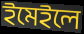
ইমেইলে